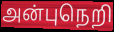
அன்புநெறி